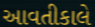
આવતીકાલે